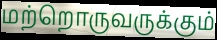
மற்றொருவருக்கும்